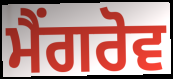
ਮੈਂਗਰੋਵ